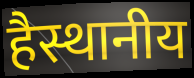
हैस्थानीय